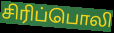
சிரிப்பொலி